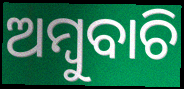
ଅମ୍ବୁବାଚି